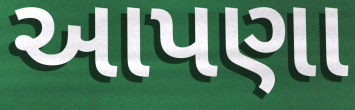
આપણા